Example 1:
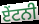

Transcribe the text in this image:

ਏਂਟਨੀ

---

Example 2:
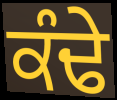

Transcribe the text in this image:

ਕੰਢੇ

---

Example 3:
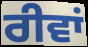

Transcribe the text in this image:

ਰੀਵਾਂ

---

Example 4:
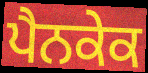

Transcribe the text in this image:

ਪੈਨਕੇਕ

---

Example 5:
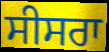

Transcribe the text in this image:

ਸੀਸਰਾ